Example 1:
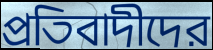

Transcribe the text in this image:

প্রতিবাদীদের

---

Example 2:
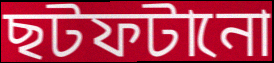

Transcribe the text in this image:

ছটফটানো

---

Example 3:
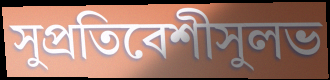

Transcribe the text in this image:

সুপ্রতিবেশীসুলভ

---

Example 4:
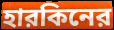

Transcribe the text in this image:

হারকিনের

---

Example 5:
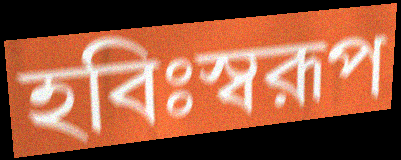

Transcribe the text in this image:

হবিঃস্বরূপ